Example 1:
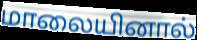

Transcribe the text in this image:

மாலையினால்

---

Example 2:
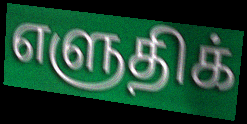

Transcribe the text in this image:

எளுதிக்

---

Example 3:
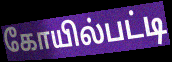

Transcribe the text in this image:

கோயில்பட்டி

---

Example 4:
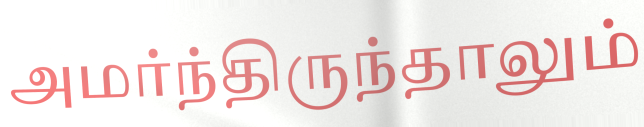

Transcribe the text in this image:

அமர்ந்திருந்தாலும்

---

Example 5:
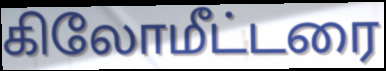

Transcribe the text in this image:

கிலோமீட்டரை